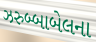
ઝરુબ્બાબેલના